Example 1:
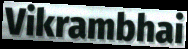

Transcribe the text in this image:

Vikrambhai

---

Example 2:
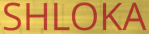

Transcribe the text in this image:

SHLOKA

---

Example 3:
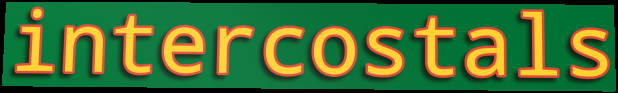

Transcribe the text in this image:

intercostals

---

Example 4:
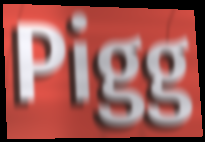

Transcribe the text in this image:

Pigg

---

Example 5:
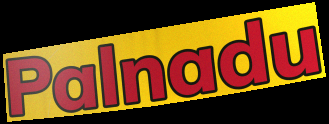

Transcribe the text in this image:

Palnadu